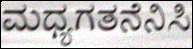
ಮಧ್ಯಗತನೆನಿಸಿ